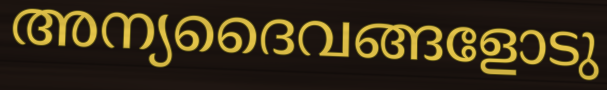
അന്യദൈവങ്ങളോടു